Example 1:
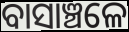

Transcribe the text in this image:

ବାସାଞ୍ଚଳେ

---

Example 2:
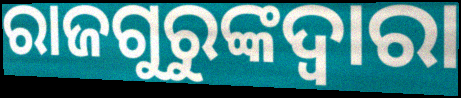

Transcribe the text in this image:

ରାଜଗୁରୁଙ୍କଦ୍ୱାରା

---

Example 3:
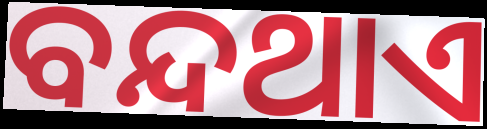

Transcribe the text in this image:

ବନ୍ଦଥାଏ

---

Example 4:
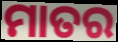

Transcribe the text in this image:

ମାତର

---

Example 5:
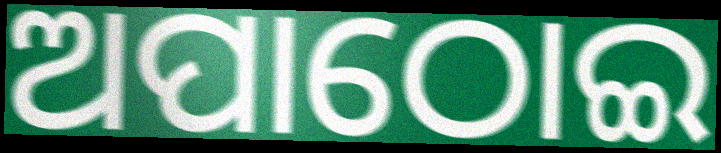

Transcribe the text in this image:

ଅପାଠୋଇ